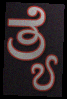
ತ್ಯೆ